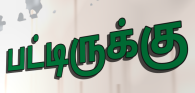
பட்டிருக்கு